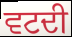
ਵਟਦੀ